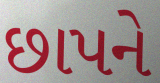
છાપને